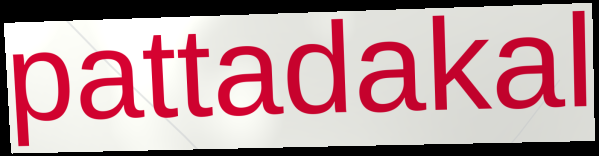
pattadakal